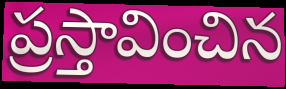
ప్రస్తావించిన